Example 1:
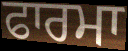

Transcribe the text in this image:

ਫਾਰਮਾ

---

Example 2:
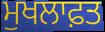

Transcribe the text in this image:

ਮੁਖਲਾਫ਼ਤ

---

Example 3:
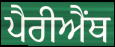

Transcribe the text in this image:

ਪੈਰੀਐਂਥ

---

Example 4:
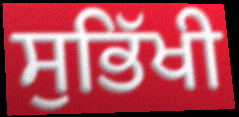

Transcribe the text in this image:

ਸੁਭਿੱਖੀ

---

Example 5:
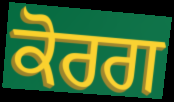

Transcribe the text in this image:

ਕੋਰਗ